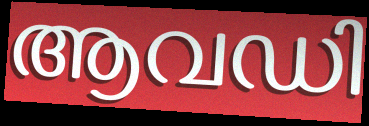
ആവഡി